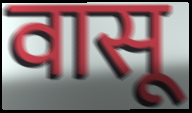
वासू